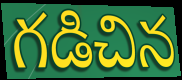
గడిచిన